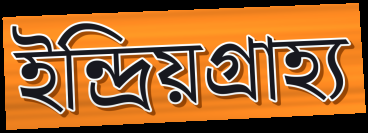
ইন্দ্রিয়গ্রাহ্য